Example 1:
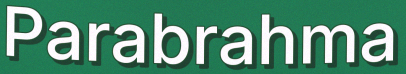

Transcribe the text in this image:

Parabrahma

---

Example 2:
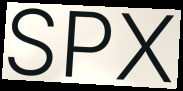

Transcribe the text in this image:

SPX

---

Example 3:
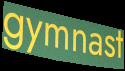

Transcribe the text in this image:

gymnast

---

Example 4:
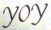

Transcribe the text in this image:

YOY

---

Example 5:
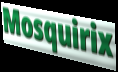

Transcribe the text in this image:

Mosquirix